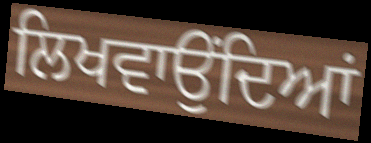
ਲਿਖਵਾਉਂਦਿਆਂ